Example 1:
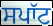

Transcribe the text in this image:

ਸਪਾੱਟ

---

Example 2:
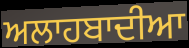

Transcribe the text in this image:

ਅਲਾਹਬਾਦੀਆ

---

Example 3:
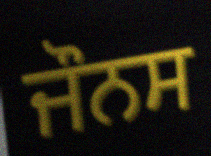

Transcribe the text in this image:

ਜੌਨਸ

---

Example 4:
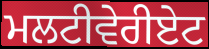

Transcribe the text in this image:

ਮਲਟੀਵੇਰੀਏਟ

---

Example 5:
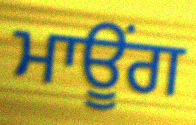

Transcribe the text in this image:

ਮਾਊਂਗ